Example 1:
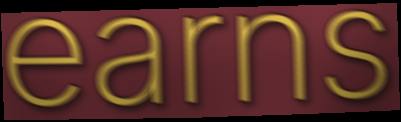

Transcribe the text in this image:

earns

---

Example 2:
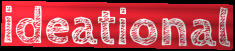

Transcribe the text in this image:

ideational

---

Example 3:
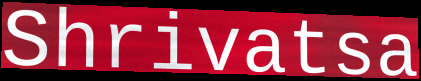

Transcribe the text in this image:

Shrivatsa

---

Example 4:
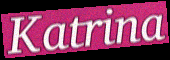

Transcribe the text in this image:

Katrina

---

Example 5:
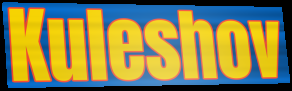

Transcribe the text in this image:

Kuleshov